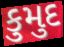
કુમુદ